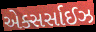
એક્સર્સાઈઝ